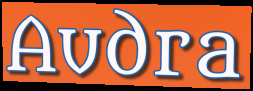
Audra